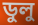
ডুলু